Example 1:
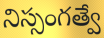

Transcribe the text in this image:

నిస్సంగత్వే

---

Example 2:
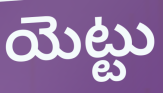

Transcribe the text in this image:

యెట్టు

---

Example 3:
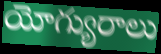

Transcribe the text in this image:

యోగ్యురాలు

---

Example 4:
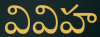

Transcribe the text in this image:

వివిహ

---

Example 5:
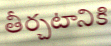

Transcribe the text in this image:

తీర్చటానికి